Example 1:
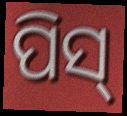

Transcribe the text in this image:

ପିସ୍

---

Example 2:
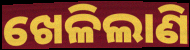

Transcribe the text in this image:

ଖେଳିଲାଣି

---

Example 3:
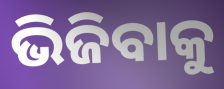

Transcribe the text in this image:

ଭିଜିବାକୁ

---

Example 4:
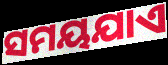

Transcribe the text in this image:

ସମୟଯାଏ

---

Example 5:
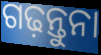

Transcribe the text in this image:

ଗଢ଼ନ୍ତୁନା